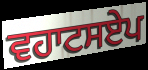
ਵਹਾਟਸਏਪ